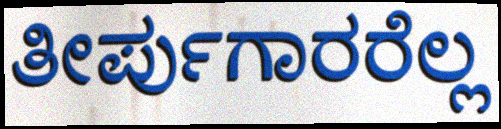
ತೀರ್ಪುಗಾರರೆಲ್ಲ